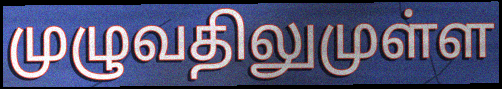
முழுவதிலுமுள்ள